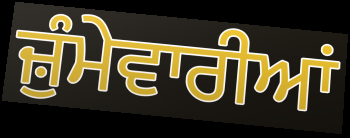
ਜ਼ੁੰਮੇਵਾਰੀਆਂ